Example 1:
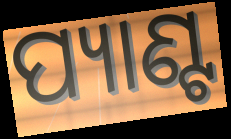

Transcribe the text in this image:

ପ୍ୟାଣ୍ଟ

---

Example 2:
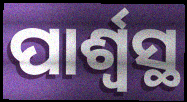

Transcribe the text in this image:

ପାର୍ଶ୍ବସ୍ଥ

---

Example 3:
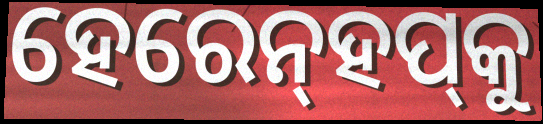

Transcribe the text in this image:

ହେରେନ୍‌ହପ୍‌କୁ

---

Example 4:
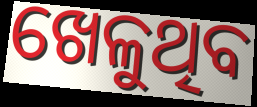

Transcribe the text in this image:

ଖେଳୁଥିବ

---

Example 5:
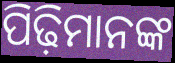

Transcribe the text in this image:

ପିଢ଼ିମାନଙ୍କ